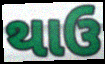
થાઉ